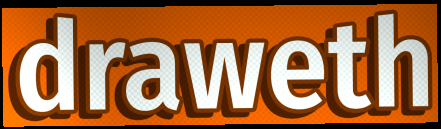
draweth